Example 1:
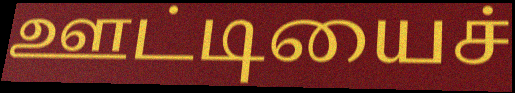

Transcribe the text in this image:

ஊட்டியைச்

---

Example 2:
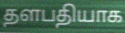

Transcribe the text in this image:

தளபதியாக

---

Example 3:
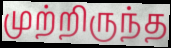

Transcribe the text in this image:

முற்றிருந்த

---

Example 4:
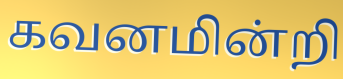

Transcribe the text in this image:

கவனமின்றி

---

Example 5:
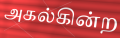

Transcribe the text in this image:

அகல்கின்ற